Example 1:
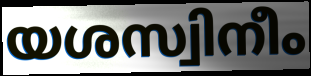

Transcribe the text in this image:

യശസ്വിനീം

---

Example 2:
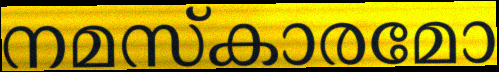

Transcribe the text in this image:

നമസ്കാരമോ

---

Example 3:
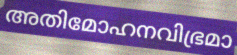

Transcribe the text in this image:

അതിമോഹനവിഭ്രമാ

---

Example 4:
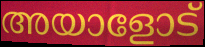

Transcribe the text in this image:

അയാളോട്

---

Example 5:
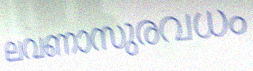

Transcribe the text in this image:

ലവണാസുരവധം